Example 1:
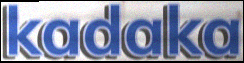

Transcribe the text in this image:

kadaka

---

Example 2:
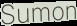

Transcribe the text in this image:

Sumon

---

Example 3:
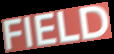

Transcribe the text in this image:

FIELD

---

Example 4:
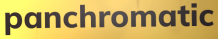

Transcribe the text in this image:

panchromatic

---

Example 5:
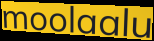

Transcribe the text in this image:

moolaalu